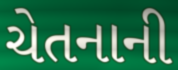
ચેતનાની